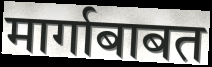
मार्गाबाबत